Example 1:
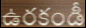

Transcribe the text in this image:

ఉరకండీ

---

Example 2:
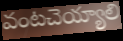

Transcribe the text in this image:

వంటచెయ్యాలి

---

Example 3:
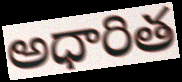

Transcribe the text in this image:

అధారిత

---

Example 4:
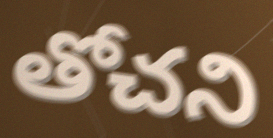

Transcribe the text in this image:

తోచని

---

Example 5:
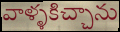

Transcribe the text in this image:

వాళ్ళకిచ్చాను